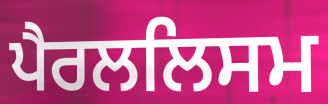
ਪੈਰਲਲਿਸਮ